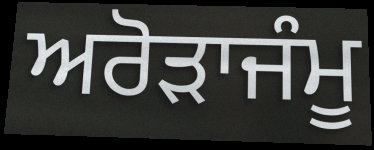
ਅਰੋੜਾਜੰਮੂ